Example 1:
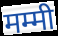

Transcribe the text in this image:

मम्‍मी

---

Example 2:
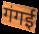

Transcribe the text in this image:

गंगई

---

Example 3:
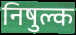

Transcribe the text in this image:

निषुल्क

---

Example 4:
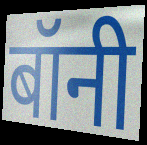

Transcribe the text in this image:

बॉनी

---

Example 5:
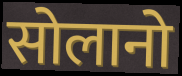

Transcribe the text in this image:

सोलानो